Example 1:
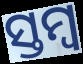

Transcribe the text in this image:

ସ୍ତମ୍ଵ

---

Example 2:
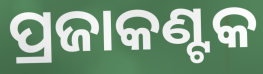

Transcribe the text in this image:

ପ୍ରଜାକଣ୍ଟକ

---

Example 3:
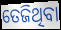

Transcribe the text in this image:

ତେଜିଥିବା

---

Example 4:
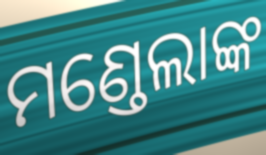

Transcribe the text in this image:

ମଣ୍ଡେଲାଙ୍କ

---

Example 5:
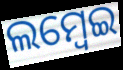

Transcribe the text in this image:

ଲମ୍ଵେଇ